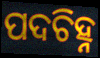
ପଦଚିହ୍ନ